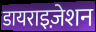
डायराइज़ेशन